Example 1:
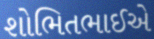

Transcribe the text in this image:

શોભિતભાઈએ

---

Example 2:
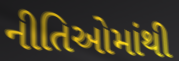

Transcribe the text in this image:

નીતિઓમાંથી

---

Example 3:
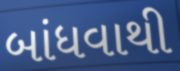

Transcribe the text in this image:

બાંધવાથી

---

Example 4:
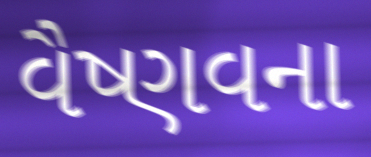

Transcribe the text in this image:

વૈષ્ણવના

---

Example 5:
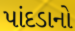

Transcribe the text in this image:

પાંદડાનો